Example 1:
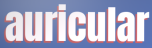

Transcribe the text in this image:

auricular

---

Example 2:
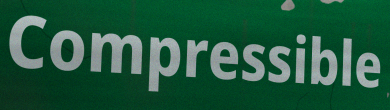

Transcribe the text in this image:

Compressible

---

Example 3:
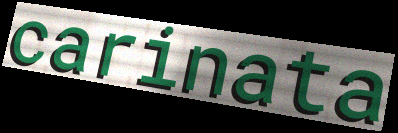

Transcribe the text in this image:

carinata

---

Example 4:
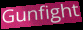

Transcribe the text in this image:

Gunfight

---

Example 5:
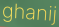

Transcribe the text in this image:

ghanij